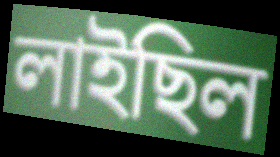
লাইছিল